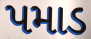
પમાડ